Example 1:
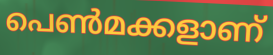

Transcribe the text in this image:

പെൺമക്കളാണ്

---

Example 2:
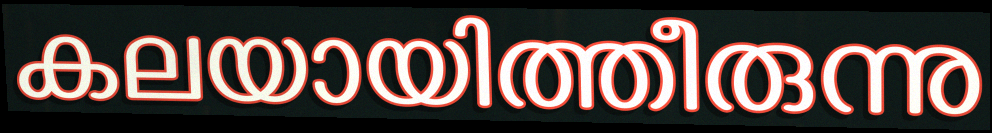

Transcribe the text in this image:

കലയായിത്തീരുന്നു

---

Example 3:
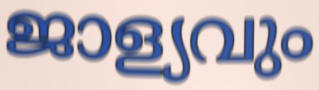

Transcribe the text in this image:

ജാള്യവും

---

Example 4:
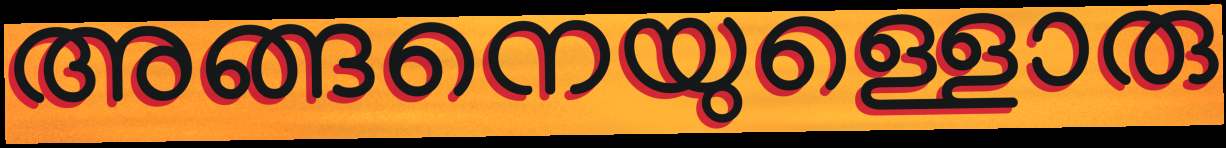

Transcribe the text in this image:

അങ്ങനെയുള്ളൊരു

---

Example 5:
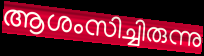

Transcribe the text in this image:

ആശംസിച്ചിരുന്നു